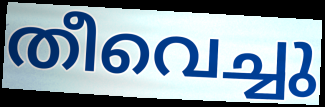
തീവെച്ചു